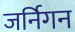
जर्निगन